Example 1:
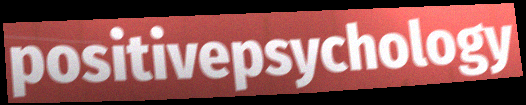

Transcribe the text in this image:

positivepsychology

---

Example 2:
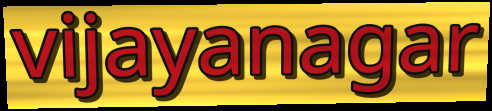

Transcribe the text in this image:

vijayanagar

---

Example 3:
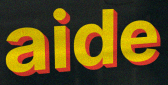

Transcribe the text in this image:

aide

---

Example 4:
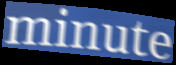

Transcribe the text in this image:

minute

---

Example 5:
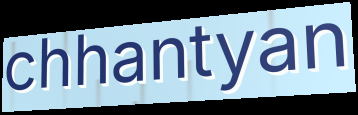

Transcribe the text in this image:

chhantyan